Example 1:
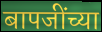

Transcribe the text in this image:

बापजींच्या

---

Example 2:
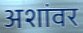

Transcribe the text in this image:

अशांवर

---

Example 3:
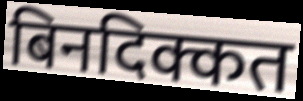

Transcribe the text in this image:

बिनदिक्कत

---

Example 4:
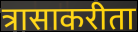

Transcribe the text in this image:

त्रासाकरीता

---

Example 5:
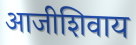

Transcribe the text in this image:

आजीशिवाय